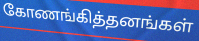
கோணங்கித்தனங்கள்